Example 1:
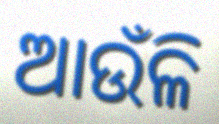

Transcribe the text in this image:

ଆଉଁଳି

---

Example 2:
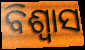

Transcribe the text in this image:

ବିଶ୍ଵାସ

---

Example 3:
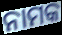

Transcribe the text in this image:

ନାମକ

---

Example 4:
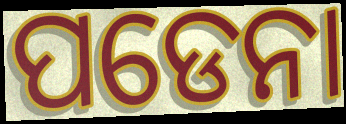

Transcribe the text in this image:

ପଡେନା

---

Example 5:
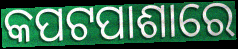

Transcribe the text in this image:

କପଟପାଶାରେ